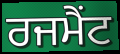
ਰਜਮੈਂਟ